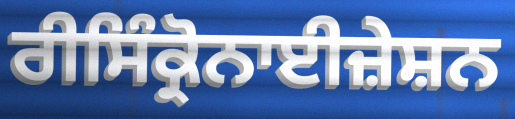
ਰੀਸਿੰਕ੍ਰੋਨਾਈਜ਼ੇਸ਼ਨ